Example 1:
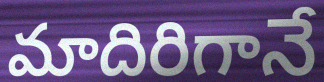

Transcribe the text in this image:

మాదిరిగానే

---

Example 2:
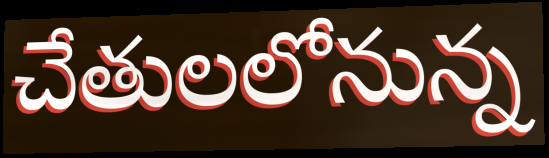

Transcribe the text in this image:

చేతులలోనున్న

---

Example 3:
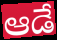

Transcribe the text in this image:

ఆడే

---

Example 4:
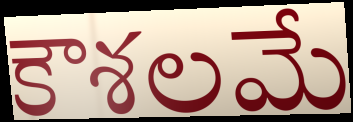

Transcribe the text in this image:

కౌశలమే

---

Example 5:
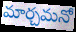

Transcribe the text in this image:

మార్చమనో